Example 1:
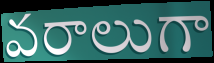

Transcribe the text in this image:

వరాలుగా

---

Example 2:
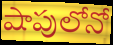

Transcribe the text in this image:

షాపులోనో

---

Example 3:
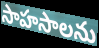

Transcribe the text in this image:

సాహసాలను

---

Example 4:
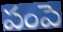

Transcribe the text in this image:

పంపె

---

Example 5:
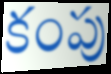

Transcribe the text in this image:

కంపు